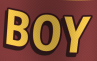
BOY